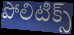
పోలిటిక్స్